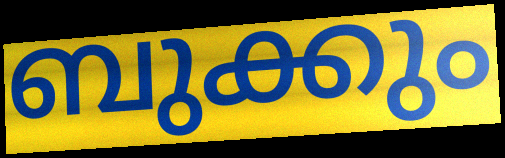
ബുക്കും